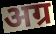
अग्र